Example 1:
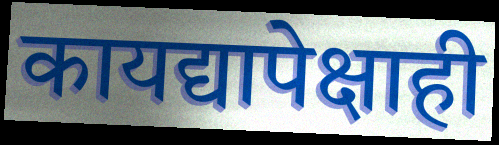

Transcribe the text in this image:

कायद्यापेक्षाही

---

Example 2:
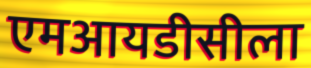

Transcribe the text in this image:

एमआयडीसीला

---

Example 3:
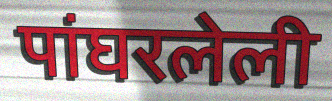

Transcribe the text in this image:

पांघरलेली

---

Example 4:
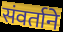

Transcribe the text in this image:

संवर्ताने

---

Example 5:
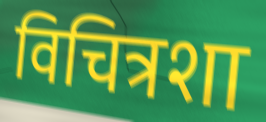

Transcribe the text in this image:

विचित्रशा